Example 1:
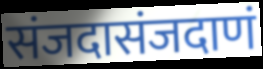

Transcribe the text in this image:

संजदासंजदाणं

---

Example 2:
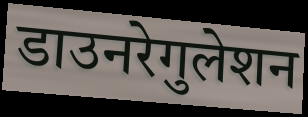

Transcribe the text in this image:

डाउनरेगुलेशन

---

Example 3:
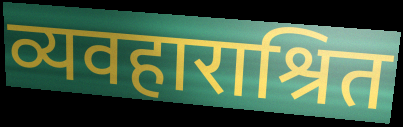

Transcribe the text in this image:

व्यवहाराश्रित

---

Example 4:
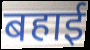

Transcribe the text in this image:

बहाई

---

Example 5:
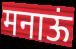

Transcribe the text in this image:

मनाऊं